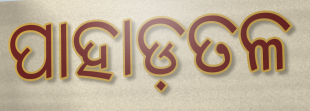
ପାହାଡ଼ତଳ